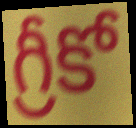
గ్రీకో